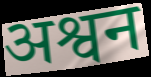
अश्वन